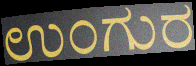
ಉಂಗುರ